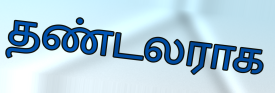
தண்டலராக